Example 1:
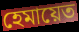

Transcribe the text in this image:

হেমায়েত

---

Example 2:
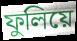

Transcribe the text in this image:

ফুলিয়ে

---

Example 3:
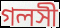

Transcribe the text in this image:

গলসী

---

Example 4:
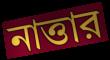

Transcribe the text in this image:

নাত্তার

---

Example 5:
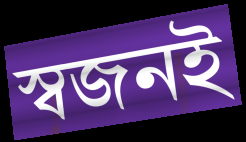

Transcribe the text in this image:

স্বজনই